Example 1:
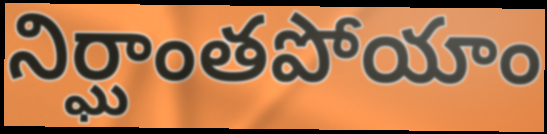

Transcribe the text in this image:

నిర్ఘాంతపోయాం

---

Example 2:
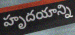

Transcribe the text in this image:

హృదయాన్ని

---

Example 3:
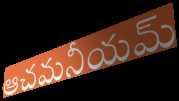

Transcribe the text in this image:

ఆచమనీయమ్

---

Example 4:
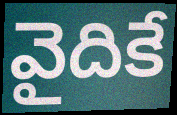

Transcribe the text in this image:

వైదికే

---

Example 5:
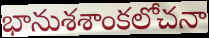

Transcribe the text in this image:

భానుశశాంకలోచనా